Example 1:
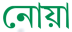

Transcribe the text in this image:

নোয়া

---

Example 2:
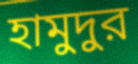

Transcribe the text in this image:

হামুদুর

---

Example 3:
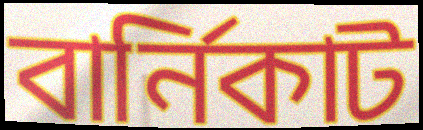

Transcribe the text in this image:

বার্নিকাট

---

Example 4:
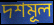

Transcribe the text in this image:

দশমূল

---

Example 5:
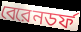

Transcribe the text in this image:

বেরেনডর্ফ